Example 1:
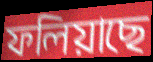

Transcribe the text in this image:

ফলিয়াছে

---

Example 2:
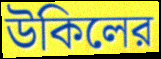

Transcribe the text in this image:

উকিলের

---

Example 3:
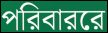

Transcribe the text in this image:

পরিবাররে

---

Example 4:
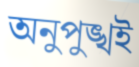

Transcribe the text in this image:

অনুপুঙ্খই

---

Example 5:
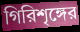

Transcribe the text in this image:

গিরিশৃঙ্গের